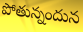
పోతున్నందున